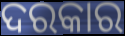
ଦରକାର